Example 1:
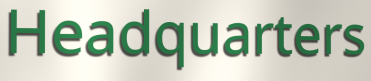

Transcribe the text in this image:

Headquarters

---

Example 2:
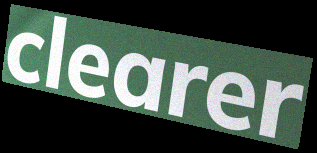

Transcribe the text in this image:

clearer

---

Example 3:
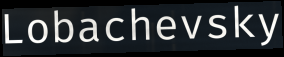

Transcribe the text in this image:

Lobachevsky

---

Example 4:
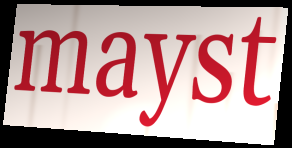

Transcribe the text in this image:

mayst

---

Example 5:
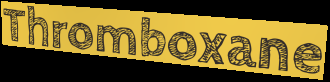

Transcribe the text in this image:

Thromboxane